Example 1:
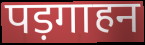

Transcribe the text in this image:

पड़गाहन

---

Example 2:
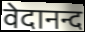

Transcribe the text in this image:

वेदानन्द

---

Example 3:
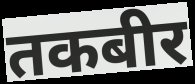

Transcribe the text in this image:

तकबीर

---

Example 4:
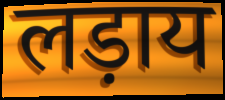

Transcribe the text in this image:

लड़ाय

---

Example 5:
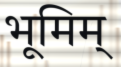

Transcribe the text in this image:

भूमिम्